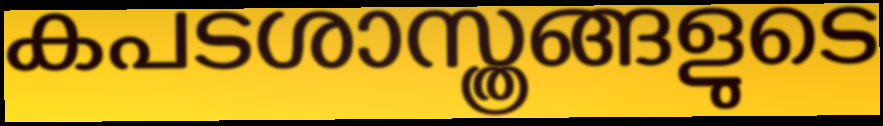
കപടശാസ്ത്രങ്ങളുടെ